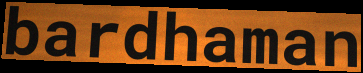
bardhaman